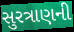
સુરત્રાણની